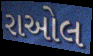
રાઓલ